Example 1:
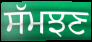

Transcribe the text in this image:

ਸੱਮਝਣ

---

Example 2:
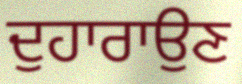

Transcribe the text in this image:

ਦੁਹਾਰਾਉਣ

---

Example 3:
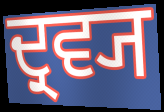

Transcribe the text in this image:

ਦ੍ਰਵ੍ਯ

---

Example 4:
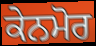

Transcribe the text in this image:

ਕੇਨਮੋਰ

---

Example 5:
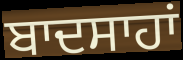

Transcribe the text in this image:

ਬਾਦਸਾਹਾਂ